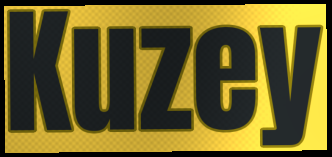
Kuzey